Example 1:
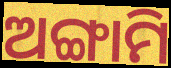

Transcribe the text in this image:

ଅଙ୍ଗାମି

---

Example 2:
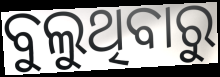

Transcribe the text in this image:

ବୁଲୁଥିବାରୁ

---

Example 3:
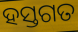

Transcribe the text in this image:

ହସ୍ତଗତ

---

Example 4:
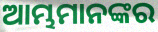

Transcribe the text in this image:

ଆମ୍ଭମାନଙ୍କର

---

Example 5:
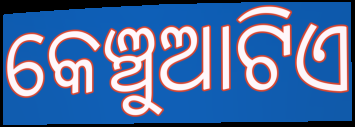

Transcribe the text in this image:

କେଞ୍ଚୁଆଟିଏ